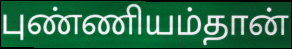
புண்ணியம்தான்